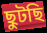
ছুটছি